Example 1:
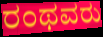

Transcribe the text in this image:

ರಂಥವರು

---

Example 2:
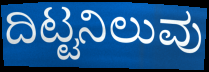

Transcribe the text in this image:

ದಿಟ್ಟನಿಲುವು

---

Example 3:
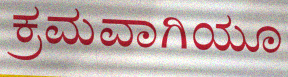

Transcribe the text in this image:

ಕ್ರಮವಾಗಿಯೂ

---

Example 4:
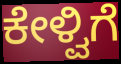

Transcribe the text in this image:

ಕೇಳ್ವಿಗೆ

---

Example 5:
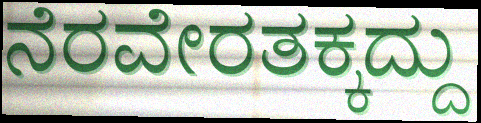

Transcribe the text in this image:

ನೆರವೇರತಕ್ಕದ್ದು